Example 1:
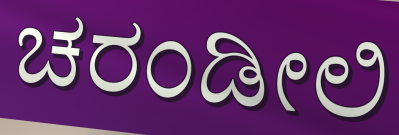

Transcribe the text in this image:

ಚರಂಡೀಲಿ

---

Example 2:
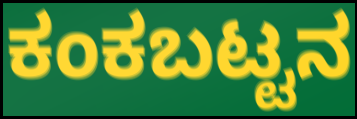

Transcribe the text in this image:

ಕಂಕಬಟ್ಟನ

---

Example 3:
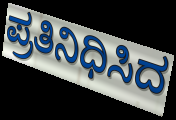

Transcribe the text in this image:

ಪ್ರತಿನಿಧಿಸಿದ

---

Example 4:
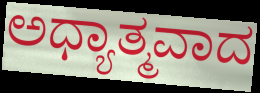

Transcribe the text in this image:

ಅಧ್ಯಾತ್ಮವಾದ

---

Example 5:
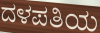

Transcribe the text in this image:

ದಳಪತಿಯ